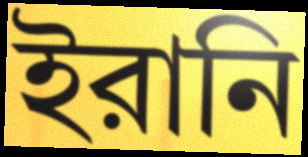
ইরানি